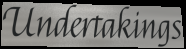
Undertakings